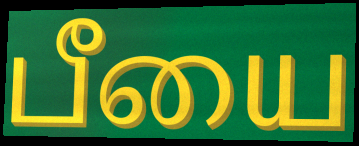
பீயை